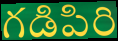
గడిపిరి